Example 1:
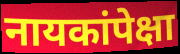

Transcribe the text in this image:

नायकांपेक्षा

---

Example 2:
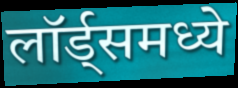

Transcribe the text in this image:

लॉर्ड्समध्ये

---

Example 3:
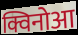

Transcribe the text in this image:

क्विनोआ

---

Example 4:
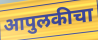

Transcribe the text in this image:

आपुलकीचा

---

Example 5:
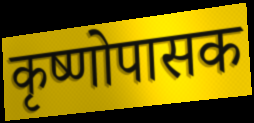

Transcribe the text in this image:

कृष्णोपासक